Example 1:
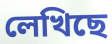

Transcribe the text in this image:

লেখিছে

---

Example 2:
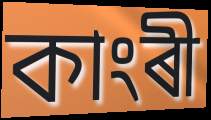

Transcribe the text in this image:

কাংৰী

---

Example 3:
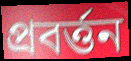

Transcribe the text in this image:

প্ৰবৰ্ত্তন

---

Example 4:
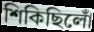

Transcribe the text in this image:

শিকিছিলোঁ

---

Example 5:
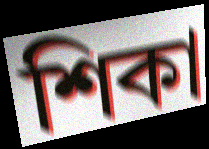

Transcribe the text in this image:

শিকা